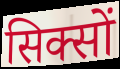
सिक्सों